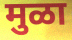
मुळा